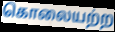
கொலையற்ற